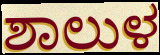
ಶಾಲುಳ